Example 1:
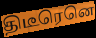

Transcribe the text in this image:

திடீரெனெ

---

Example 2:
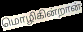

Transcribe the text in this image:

மொழிகின்றான்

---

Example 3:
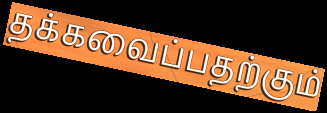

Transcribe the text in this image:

தக்கவைப்பதற்கும்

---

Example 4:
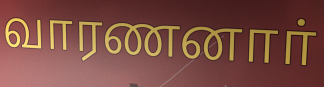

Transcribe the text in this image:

வாரணனார்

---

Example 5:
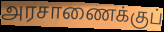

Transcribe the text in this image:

அரசாணைக்குப்